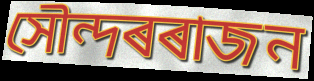
সৌন্দৰৰাজন